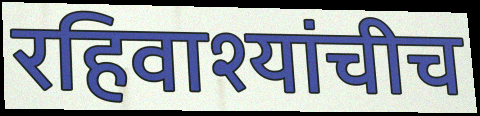
रहिवाश्यांचीच